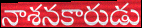
నాశనకారుడు